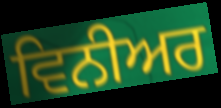
ਵਿਨੀਅਰ